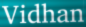
Vidhan